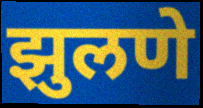
झुलणे